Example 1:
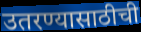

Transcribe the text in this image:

उतरण्यासाठीची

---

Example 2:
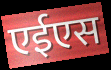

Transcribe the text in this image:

एईएस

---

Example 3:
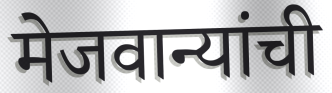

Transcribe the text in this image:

मेजवान्यांची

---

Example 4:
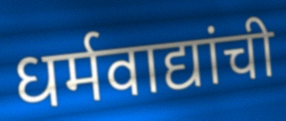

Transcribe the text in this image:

धर्मवाद्यांची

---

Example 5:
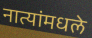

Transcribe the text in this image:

नात्यांमधले